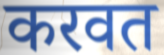
करवत